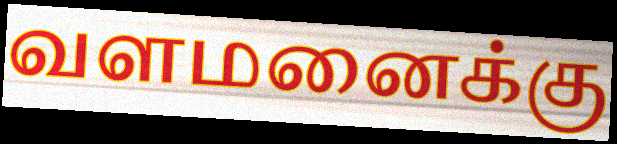
வளமனைக்கு